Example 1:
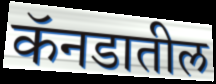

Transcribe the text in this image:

कॅनडातील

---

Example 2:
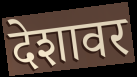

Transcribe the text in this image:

देशावर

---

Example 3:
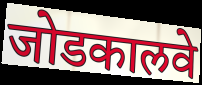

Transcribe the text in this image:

जोडकालवे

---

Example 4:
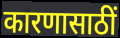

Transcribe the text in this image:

कारणासाठीं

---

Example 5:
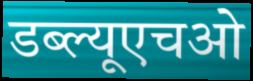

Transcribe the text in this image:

डब्ल्यूएचओ